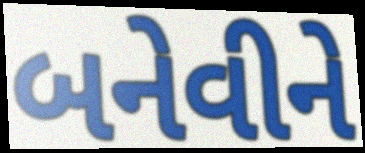
બનેવીને